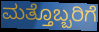
ಮತ್ತೊಬ್ಬರಿಗೆ